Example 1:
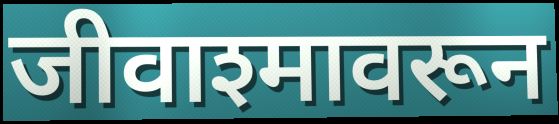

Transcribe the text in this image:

जीवाश्मावरून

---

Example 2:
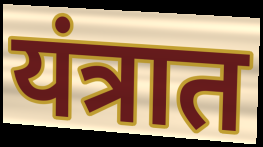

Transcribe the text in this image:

यंत्रात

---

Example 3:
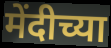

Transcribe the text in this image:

मेंदीच्या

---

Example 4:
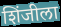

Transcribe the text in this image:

शिंजीला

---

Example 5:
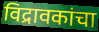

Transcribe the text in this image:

विद्रावकांचा